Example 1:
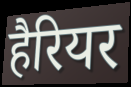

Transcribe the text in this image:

हैरियर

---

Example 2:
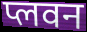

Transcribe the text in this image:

प्लवन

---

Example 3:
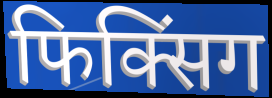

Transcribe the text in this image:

फिक्सिंग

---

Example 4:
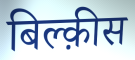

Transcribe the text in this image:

बिल्क़ीस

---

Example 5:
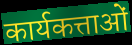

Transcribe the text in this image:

कार्यकत्ताओं